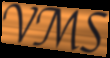
VMS